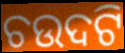
ଚଉଦଟି